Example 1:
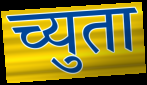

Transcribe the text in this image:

च्युता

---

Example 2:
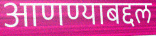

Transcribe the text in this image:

आणण्याबद्दल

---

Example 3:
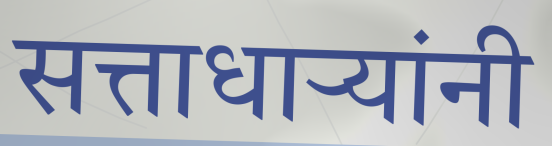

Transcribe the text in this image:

सत्ताधाऱ्यांनी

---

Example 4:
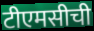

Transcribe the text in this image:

टीएमसीची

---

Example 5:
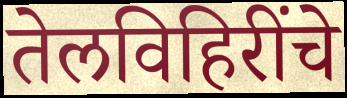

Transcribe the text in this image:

तेलविहिरींचे